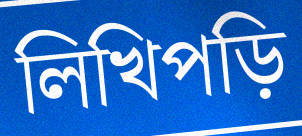
লিখিপড়ি